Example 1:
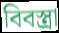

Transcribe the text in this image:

বিবস্ত্রা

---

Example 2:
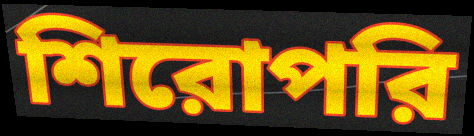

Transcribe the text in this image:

শিরোপরি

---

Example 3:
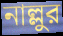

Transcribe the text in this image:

নাল্লুর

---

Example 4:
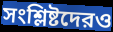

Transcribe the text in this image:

সংশ্লিষ্টদেরও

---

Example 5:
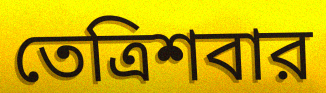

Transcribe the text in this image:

তেত্রিশবার